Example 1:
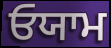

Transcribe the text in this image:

ਓਯਾਮ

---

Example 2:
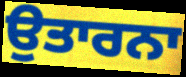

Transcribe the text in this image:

ਉਤਾਰਨਾ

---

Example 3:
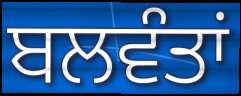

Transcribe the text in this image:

ਬਲਵੰਤਾਂ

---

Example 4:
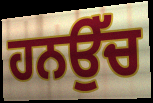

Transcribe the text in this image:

ਹਨਉੱਚ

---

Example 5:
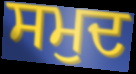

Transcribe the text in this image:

ਸਮੁਦ